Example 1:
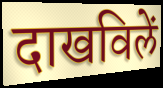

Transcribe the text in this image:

दाखविलें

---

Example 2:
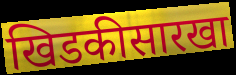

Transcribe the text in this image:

खिडकीसारखा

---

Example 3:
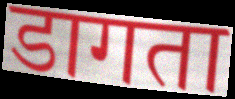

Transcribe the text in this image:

डागता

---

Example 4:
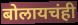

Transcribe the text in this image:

बोलायचंही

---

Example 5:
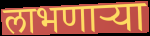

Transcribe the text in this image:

लाभणार्‍या